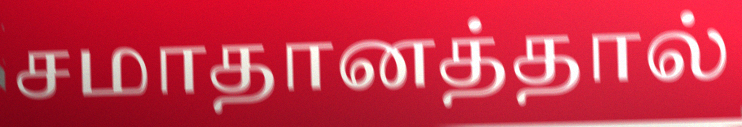
சமாதானத்தால்